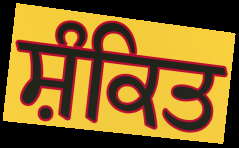
ਸ਼ੰਕਿਤ